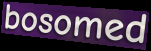
bosomed